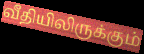
வீதியிலிருக்கும்